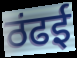
ठंढई